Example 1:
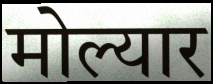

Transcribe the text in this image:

मोल्यार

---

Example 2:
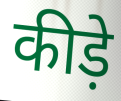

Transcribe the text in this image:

कीड़े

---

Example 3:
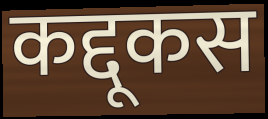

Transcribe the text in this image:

कद्दूकस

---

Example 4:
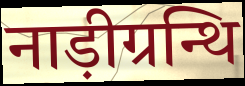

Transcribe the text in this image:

नाड़ीग्रन्थि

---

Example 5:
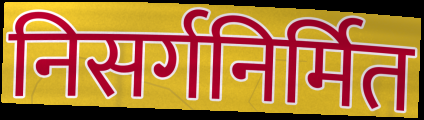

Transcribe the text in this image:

निसर्गनिर्मित